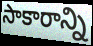
సాకారాన్ని